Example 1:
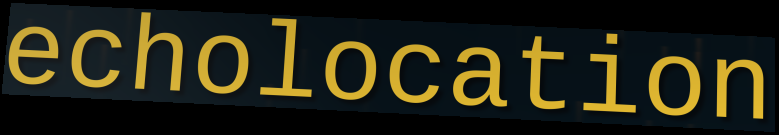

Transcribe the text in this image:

echolocation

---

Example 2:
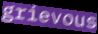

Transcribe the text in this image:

grievous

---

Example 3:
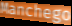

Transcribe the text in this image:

Manchego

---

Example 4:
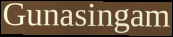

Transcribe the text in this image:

Gunasingam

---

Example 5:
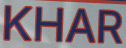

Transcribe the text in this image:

KHAR